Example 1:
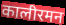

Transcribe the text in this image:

कालीरमन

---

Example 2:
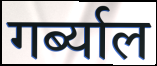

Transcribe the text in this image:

गर्ब्याल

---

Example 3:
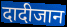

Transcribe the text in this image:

दादीजान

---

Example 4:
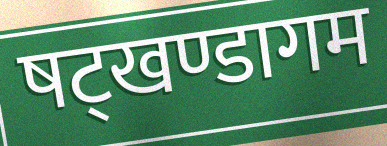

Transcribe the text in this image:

षट्खण्डागम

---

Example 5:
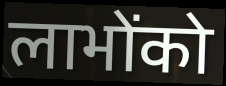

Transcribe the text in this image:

लाभोंको